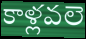
కాళ్లవలె